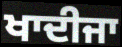
ਖਾਦੀਜਾ